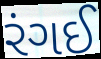
રંગઈ